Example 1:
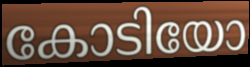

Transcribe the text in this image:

കോടിയോ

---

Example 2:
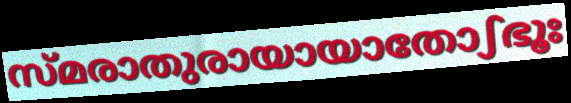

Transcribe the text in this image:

സ്മരാതുരായായാതോഽഭൂഃ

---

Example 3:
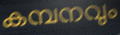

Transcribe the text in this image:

കമ്പനവും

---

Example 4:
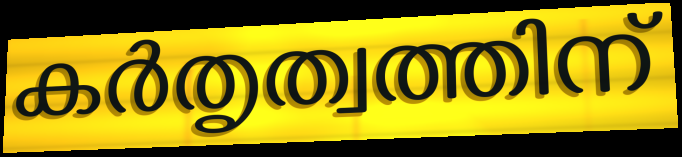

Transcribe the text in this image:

കർതൃത്വത്തിന്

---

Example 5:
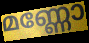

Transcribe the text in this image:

മണ്ണോ